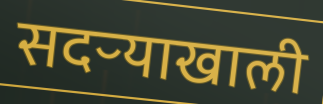
सदऱ्याखाली